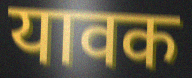
यावक